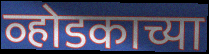
व्होडकाच्या